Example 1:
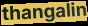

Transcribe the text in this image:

thangalin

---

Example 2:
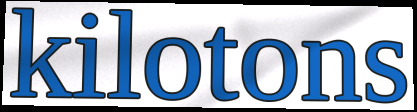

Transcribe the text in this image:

kilotons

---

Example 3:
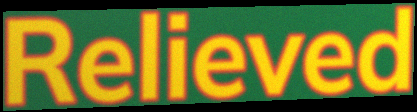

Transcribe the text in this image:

Relieved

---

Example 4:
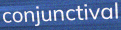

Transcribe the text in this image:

conjunctival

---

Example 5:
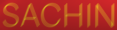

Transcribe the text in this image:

SACHIN